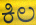
ಕಿಲ